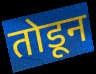
तोडून